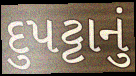
દુપટ્ટાનું